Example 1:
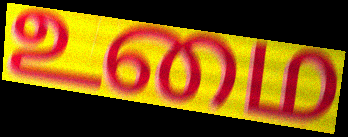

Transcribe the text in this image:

உமை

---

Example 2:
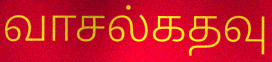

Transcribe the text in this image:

வாசல்கதவு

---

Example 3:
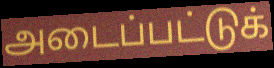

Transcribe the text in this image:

அடைப்பட்டுக்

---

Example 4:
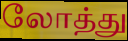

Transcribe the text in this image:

லோத்து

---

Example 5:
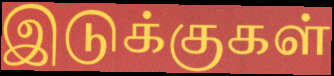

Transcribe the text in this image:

இடுக்குகள்